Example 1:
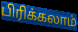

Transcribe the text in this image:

பிரிக்கலாம்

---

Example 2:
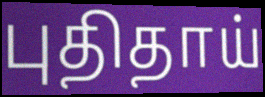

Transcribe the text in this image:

புதிதாய்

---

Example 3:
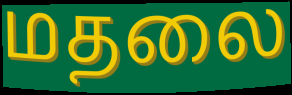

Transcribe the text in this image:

மதலை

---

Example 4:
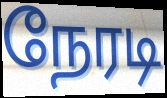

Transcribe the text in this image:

நேரடி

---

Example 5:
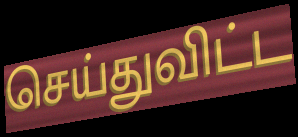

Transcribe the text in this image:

செய்துவிட்ட